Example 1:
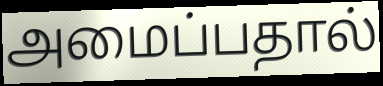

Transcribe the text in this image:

அமைப்பதால்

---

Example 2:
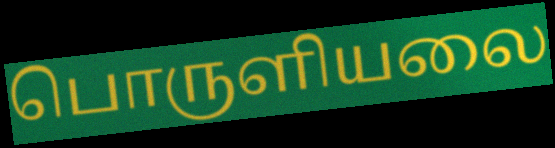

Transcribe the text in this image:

பொருளியலை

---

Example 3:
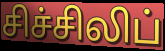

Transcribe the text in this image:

சிச்சிலிப்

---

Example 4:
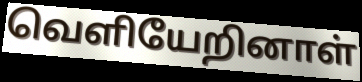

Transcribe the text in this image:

வெளியேறினாள்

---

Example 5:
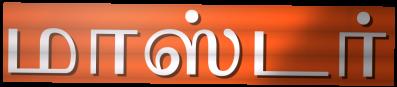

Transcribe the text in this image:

மாஸ்டர்